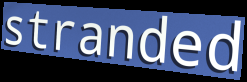
stranded